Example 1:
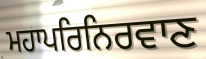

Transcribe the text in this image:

ਮਹਾਪਰਿਨਿਰਵਾਣ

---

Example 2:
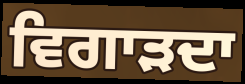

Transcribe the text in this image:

ਵਿਗਾੜਦਾ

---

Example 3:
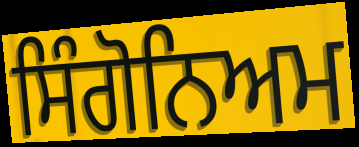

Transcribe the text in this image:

ਸਿੰਗੋਨਿਅਮ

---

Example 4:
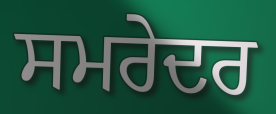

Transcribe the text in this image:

ਸਮਰੇਦਰ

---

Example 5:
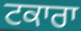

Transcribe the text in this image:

ਟਕਾਰਾ